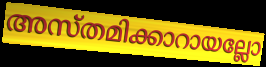
അസ്തമിക്കാറായല്ലോ